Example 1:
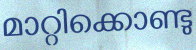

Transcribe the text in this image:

മാറ്റിക്കൊണ്ടു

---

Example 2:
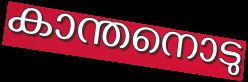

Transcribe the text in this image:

കാന്തനൊടു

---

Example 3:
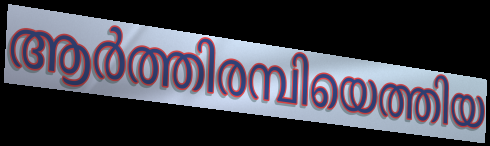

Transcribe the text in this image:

ആർത്തിരമ്പിയെത്തിയ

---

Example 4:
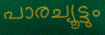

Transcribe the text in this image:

പാരച്യൂട്ടും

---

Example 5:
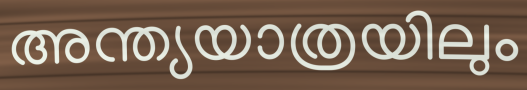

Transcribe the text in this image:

അന്ത്യയാത്രയിലും